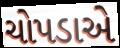
ચોપડાએ